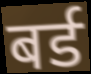
बर्ड